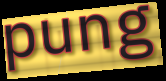
pung